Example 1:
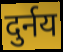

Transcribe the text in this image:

दुर्नय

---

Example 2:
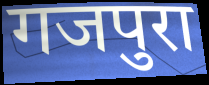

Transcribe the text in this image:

गजपुरा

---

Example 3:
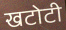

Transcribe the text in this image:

खटोटी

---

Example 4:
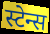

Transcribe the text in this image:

स्टेन्स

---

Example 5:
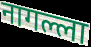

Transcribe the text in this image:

नागल्ला